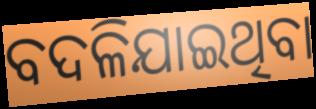
ବଦଳିଯାଇଥିବା